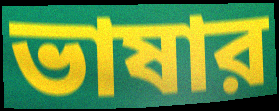
ভাষার